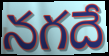
నగదే